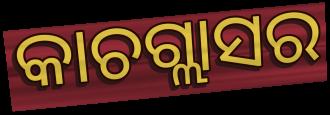
କାଚଗ୍ଲାସର